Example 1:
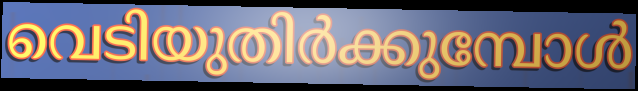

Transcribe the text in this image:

വെടിയുതിർക്കുമ്പോൾ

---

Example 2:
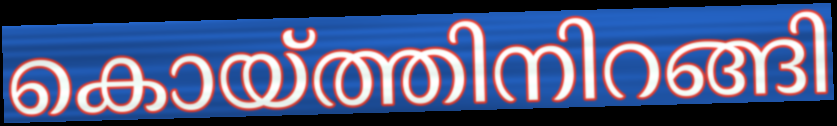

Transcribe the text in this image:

കൊയ്ത്തിനിറങ്ങി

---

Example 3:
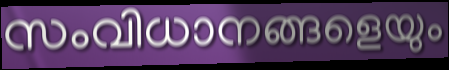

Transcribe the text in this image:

സംവിധാനങ്ങളെയും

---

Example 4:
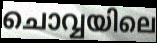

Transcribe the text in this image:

ചൊവ്വയിലെ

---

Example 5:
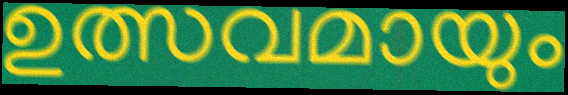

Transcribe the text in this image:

ഉത്സവമായും